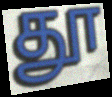
தூ